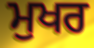
ਮੁਖਰ